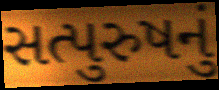
સત્પુરુષનું